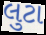
લુટા